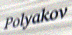
Polyakov